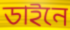
ডাইনে